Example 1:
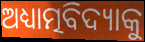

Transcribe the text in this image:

ଅଧ୍ୟାତ୍ମବିଦ୍ୟାକୁ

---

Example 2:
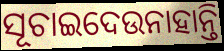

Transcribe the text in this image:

ସୂଚାଇଦେଉନାହାନ୍ତି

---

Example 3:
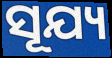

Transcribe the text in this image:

ସୂଯ୍ୟ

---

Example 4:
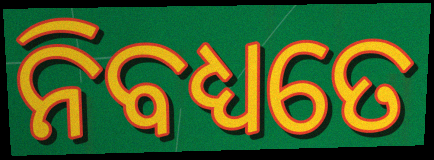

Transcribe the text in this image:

ନିବଧ୍ୟତେ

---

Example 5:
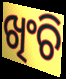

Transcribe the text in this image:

ଖିଂଚି